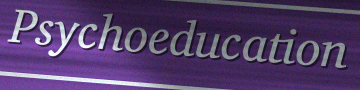
Psychoeducation